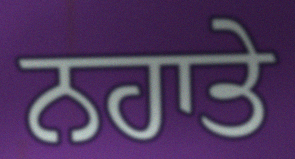
ਨਹਾਤੇ